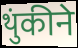
थुंकीने